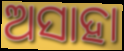
ଅସାହା